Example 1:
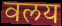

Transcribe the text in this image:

वलय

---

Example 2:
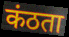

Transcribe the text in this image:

कंठता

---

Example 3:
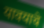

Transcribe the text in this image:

यावयाचे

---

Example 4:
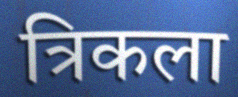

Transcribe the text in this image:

त्रिकला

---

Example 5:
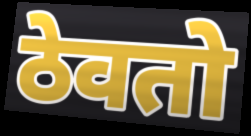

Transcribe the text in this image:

ठेवतो